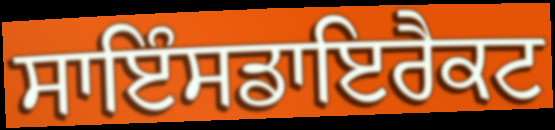
ਸਾਇੰਸਡਾਇਰੈਕਟ